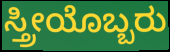
ಸ್ತ್ರೀಯೊಬ್ಬರು